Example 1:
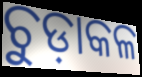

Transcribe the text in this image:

ଚୁଡ଼ାକଳ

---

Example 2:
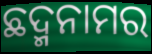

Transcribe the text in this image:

ଛଦ୍ମନାମର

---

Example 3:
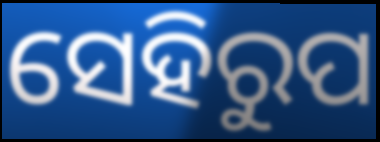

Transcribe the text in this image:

ସେହିରୁପ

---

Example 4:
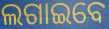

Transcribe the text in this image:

ଲଗାଇବେ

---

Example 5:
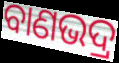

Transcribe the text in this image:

ବାଣଭଦ୍ର